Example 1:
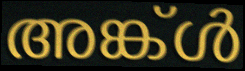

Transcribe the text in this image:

അങ്ക്ൾ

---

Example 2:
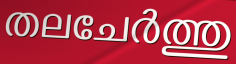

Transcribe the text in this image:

തലചേർത്തു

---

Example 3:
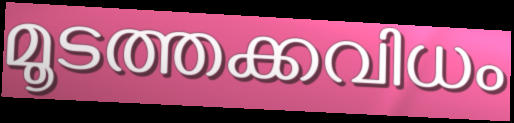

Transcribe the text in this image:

മൂടത്തക്കവിധം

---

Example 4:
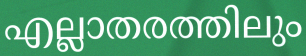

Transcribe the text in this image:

എല്ലാതരത്തിലും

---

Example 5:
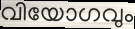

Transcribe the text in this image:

വിയോഗവും